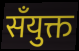
सँयुक्त